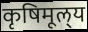
कृषिमूल्य